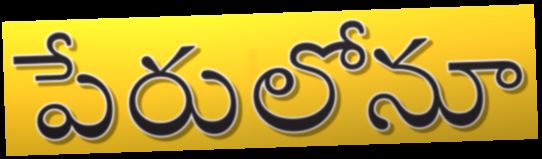
పేరులోనూ